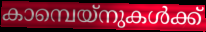
കാമ്പെയ്നുകൾക്ക്